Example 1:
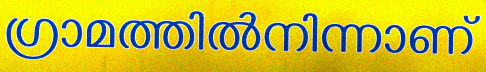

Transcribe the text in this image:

ഗ്രാമത്തിൽനിന്നാണ്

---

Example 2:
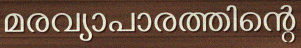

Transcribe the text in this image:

മരവ്യാപാരത്തിന്റെ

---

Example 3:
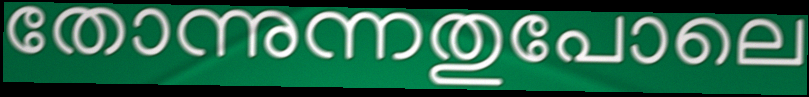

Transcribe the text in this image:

തോന്നുന്നതുപോലെ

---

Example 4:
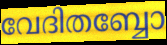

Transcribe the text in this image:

വേദിതബ്ബോ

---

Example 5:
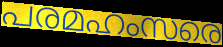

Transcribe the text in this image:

പരമഹംസരെ